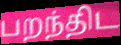
பறந்திட